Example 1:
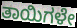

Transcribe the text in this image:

ತಾಯಿಗಳೇ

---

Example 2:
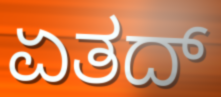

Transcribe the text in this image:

ಏತದ್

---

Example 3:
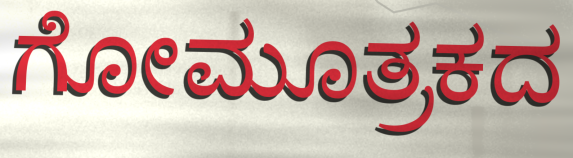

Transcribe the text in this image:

ಗೋಮೂತ್ರಕದ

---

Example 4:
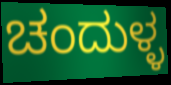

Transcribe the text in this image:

ಚಂದುಳ್ಳ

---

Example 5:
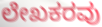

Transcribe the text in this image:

ಲೇಖಕರವು